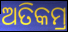
ଅତିକମ୍ର